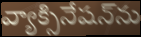
వ్యాక్సినేషన్‌ను